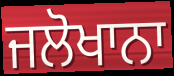
ਜਲੋਖਾਨਾ